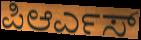
ಪಿಆರ್ಎಸ್